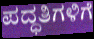
ಪದ್ಧತಿಗಳಿಗೆ